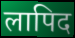
लापिद